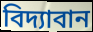
বিদ্যাবান